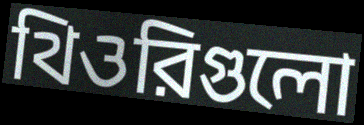
থিওরিগুলো